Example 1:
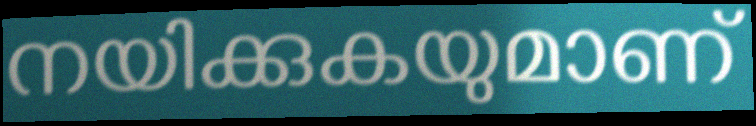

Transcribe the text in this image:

നയിക്കുകയുമാണ്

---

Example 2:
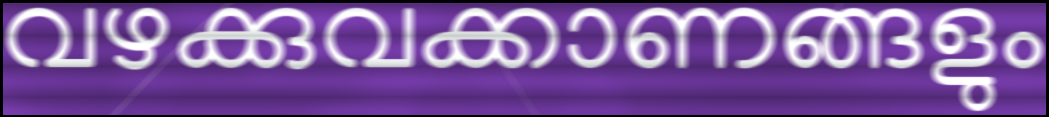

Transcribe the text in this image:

വഴക്കുവക്കാണങ്ങളും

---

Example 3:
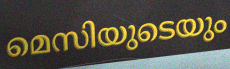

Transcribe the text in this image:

മെസിയുടെയും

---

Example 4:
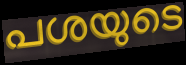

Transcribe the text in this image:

പശയുടെ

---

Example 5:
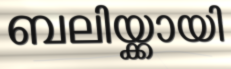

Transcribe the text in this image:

ബലിയ്ക്കായി